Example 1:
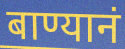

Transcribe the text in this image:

बाण्यानं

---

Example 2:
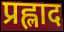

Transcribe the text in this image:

प्रह्लाद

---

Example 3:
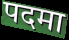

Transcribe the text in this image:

पदमा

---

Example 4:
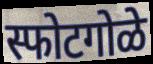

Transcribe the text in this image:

स्फोटगोळे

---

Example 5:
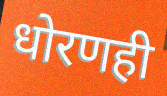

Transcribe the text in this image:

धोरणही